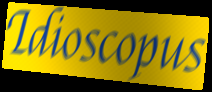
Idioscopus